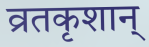
व्रतकृशान्